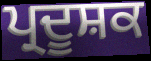
ਪ੍ਰਦੂਸ਼ਕ